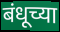
बंधूच्या